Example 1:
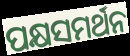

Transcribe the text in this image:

ପକ୍ଷସମର୍ଥନ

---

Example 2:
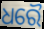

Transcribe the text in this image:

ଧରୈ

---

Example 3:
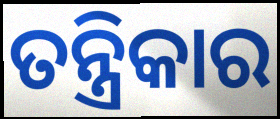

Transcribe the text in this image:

ତନ୍ତ୍ରିକାର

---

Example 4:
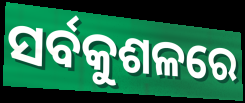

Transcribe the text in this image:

ସର୍ବକୁଶଳରେ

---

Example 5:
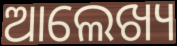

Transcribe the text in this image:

ଆଲେଖ୍ୟ